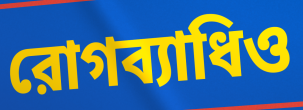
রোগব্যাধিও